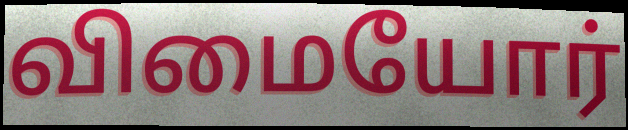
விமையோர்